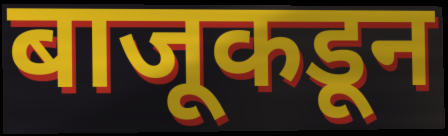
बाजूकडून